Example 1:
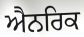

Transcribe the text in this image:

ਐਨਰਿਕ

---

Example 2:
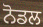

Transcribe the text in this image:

ਨੋਡਲ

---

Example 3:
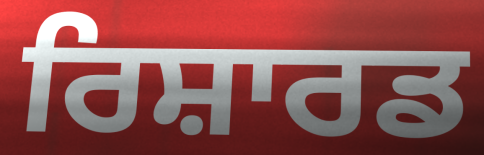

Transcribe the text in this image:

ਰਿਸ਼ਾਰਡ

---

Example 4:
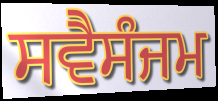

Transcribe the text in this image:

ਸਵੈਸੰਜਮ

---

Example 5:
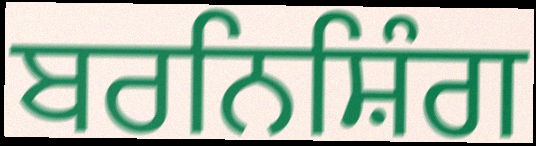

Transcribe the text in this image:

ਬਰਨਿਸ਼ਿੰਗ